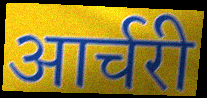
आर्चरी